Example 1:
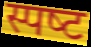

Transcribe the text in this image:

स्‍पष्‍ट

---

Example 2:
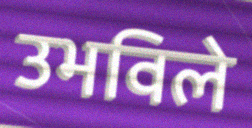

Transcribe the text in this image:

उभविले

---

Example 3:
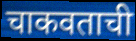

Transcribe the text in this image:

चाकवताची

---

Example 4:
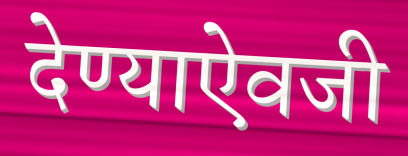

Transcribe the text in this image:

देण्याऐवजी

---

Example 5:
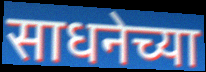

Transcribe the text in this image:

साधनेच्या